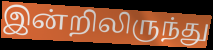
இன்றிலிருந்து